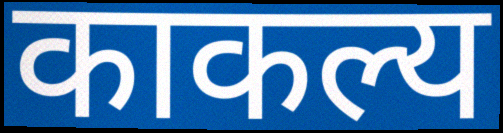
काकल्य